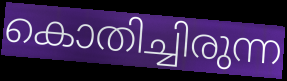
കൊതിച്ചിരുന്ന